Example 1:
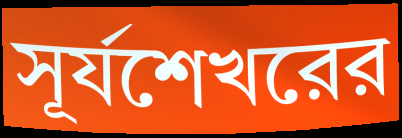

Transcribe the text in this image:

সূর্যশেখরের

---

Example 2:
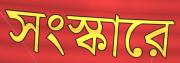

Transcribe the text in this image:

সংস্কারে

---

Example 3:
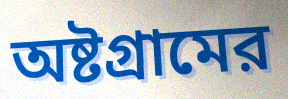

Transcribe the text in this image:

অষ্টগ্রামের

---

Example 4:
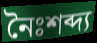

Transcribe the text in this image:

নৈঃশব্দ্য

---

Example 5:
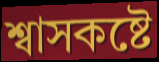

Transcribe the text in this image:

শ্বাসকষ্টে